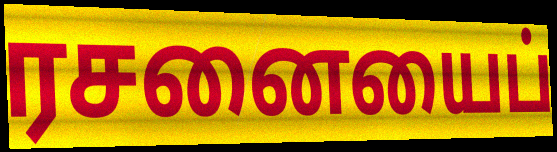
ரசனையைப்